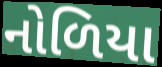
નોળિયા